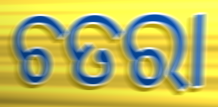
ଚତରା